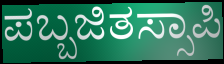
ಪಬ್ಬಜಿತಸ್ಸಾಪಿ